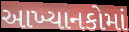
આખ્યાનકોમાં